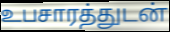
உபசாரத்துடன்